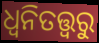
ଧ୍ୱନିତତ୍ତ୍ୱରୁ